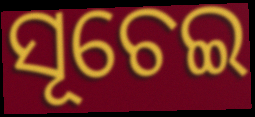
ସୂଚେଇ